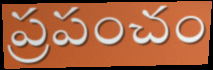
ప్రపంచం